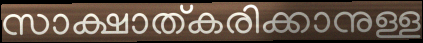
സാക്ഷാത്കരിക്കാനുള്ള